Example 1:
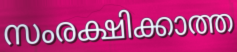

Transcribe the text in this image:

സംരക്ഷിക്കാത്ത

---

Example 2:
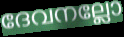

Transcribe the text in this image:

ദേവനല്ലോ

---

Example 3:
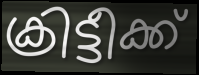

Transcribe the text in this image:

ക്രിട്ടീക്ക്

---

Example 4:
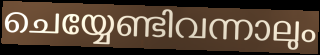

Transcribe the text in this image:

ചെയ്യേണ്ടിവന്നാലും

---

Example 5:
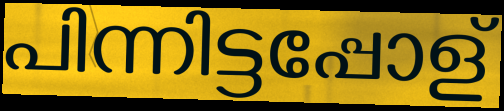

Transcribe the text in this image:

പിന്നിട്ടപ്പോള്